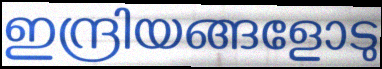
ഇന്ദ്രിയങ്ങളോടു